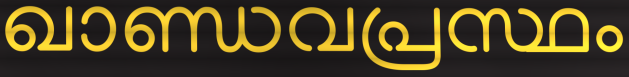
ഖാണ്ഡവപ്രസ്ഥം